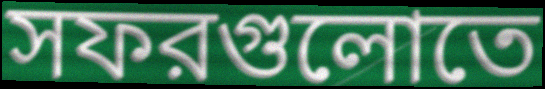
সফরগুলোতে